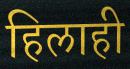
हिलाही